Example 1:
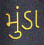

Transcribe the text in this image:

મુંડા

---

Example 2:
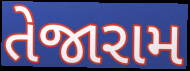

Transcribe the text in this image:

તેજારામ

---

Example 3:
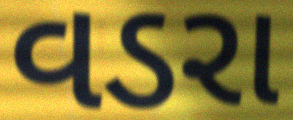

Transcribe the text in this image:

વડરા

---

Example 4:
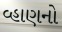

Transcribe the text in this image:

વ્હાણનો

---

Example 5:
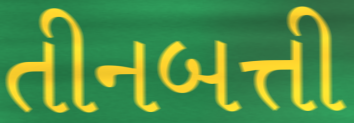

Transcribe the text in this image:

તીનબત્તી